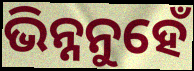
ଭିନ୍ନନୁହେଁ